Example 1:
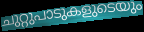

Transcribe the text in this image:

ചുറ്റുപാടുകളുടെയും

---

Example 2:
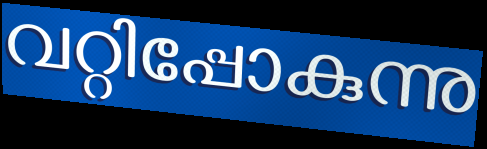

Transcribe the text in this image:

വറ്റിപ്പോകുന്നു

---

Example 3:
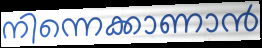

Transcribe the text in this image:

നിന്നെക്കാണാൻ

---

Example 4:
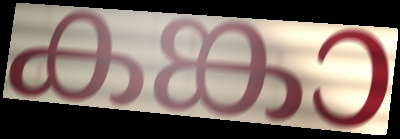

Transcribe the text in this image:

കങ്കാ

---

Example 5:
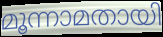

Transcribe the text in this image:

മൂന്നാമതായി